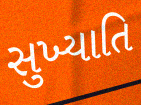
સુખ્યાતિ